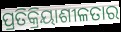
ପ୍ରତିକ୍ରିୟାଶୀଳତାର